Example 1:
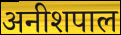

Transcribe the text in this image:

अनीशपाल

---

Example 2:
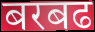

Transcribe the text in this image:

बरबढ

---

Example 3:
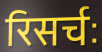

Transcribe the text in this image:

रिसर्चः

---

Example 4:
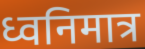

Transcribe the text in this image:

ध्वनिमात्र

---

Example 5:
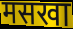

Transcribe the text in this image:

मसखा